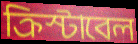
ক্রিস্টাবেল